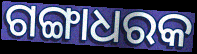
ଗଙ୍ଗାଧରକ